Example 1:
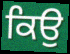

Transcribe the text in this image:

ਕਿਉ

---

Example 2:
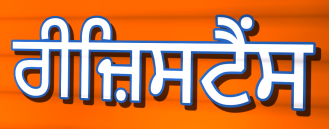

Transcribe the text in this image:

ਰੀਜ਼ਿਸਟੈਂਸ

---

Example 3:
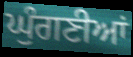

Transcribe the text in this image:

ਘੁੰਗਣੀਆਂ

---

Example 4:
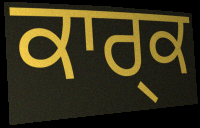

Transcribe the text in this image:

ਕਾਰ੍ਕ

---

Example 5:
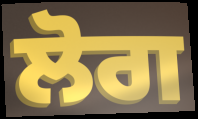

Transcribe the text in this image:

ਲੋਗ